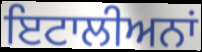
ਇਟਾਲੀਅਨਾਂ